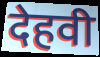
देहवी